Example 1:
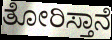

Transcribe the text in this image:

ತೋರಿಸ್ತಾನೆ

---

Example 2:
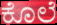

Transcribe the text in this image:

ಕೊಲೆ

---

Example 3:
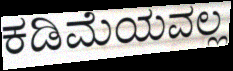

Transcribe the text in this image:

ಕಡಿಮೆಯವಲ್ಲ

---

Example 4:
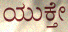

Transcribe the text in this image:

ಯುಕ್ತೇ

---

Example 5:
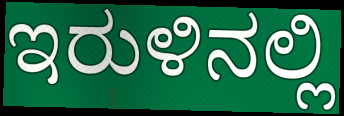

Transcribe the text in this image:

ಇರುಳಿನಲ್ಲಿ